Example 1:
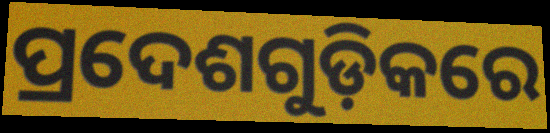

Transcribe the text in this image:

ପ୍ରଦେଶଗୁଡ଼ିକରେ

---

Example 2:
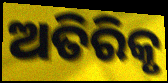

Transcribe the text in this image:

ଅତିରିକୃ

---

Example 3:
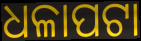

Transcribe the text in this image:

ଧଳାପଟା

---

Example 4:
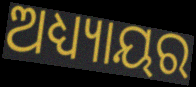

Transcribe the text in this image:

ଅଧ୍ୟ୍ୟାୟର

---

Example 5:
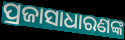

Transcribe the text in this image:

ପ୍ରଜାସାଧାରଣଙ୍କ